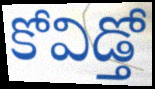
కోవిడ్తో